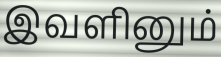
இவளினும்